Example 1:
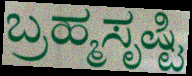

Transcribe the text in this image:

ಬ್ರಹ್ಮಸೃಷ್ಟಿ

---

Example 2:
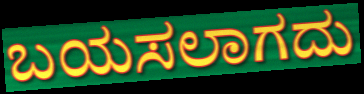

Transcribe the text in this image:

ಬಯಸಲಾಗದು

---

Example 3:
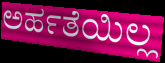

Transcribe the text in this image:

ಅರ್ಹತೆಯಿಲ್ಲ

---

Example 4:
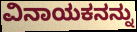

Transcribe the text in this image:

ವಿನಾಯಕನನ್ನು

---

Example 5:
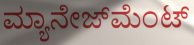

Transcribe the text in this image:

ಮ್ಯಾನೇಜ್‍ಮೆಂಟ್